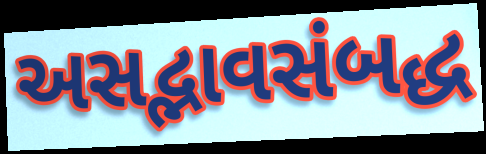
અસદ્ભાવસંબદ્ધ